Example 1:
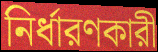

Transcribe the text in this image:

নির্ধারণকারী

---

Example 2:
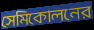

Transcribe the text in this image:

সেমিকোলনের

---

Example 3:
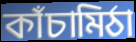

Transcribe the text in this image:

কাঁচামিঠা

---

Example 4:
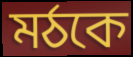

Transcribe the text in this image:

মঠকে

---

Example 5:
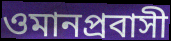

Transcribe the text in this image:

ওমানপ্রবাসী